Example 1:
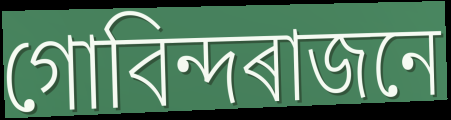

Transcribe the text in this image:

গোবিন্দৰাজনে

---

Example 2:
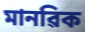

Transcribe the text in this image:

মানৱিক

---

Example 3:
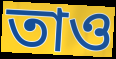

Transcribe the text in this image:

তাও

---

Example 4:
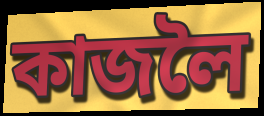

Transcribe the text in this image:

কাজলৈ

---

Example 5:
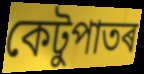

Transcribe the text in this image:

কেটুপাতৰ